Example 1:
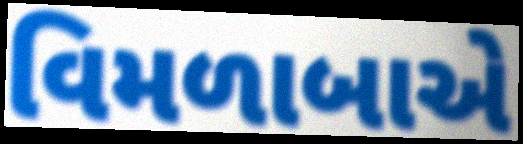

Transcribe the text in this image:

વિમળાબાએ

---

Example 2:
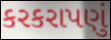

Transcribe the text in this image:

કરકરાપણું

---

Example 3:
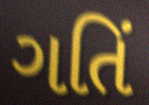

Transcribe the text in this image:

ગતિં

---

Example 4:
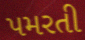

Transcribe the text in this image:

પમરતી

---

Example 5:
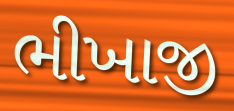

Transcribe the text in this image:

ભીખાજી